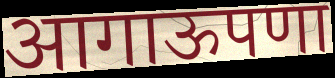
आगाऊपणा